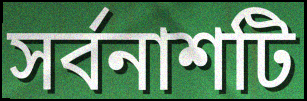
সর্বনাশটি